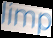
limp